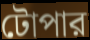
টোপার